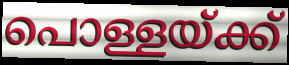
പൊള്ളയ്ക്ക്